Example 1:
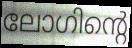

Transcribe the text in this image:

ലോഗിന്റെ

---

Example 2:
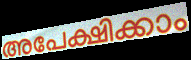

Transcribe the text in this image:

അപേക്ഷിക്കാം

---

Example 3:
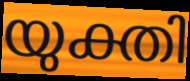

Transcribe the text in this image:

യുക്തി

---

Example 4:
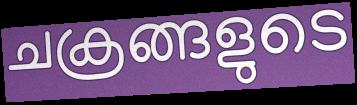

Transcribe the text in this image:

ചക്രങ്ങളുടെ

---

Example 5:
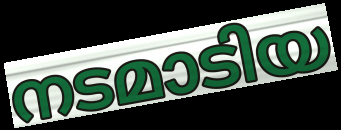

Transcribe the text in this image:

നടമാടിയ